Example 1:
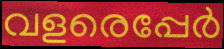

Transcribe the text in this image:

വളരെപ്പേർ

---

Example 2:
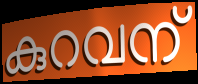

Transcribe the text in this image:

കുറവന്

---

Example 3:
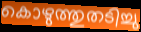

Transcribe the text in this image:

കൊഴുത്തുതടിച്ചു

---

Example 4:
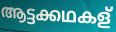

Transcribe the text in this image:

ആട്ടക്കഥകള്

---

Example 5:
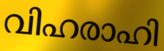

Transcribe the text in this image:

വിഹരാഹി